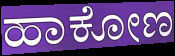
ಹಾಕೋಣ